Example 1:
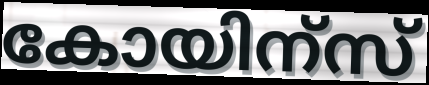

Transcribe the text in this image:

കോയിന്സ്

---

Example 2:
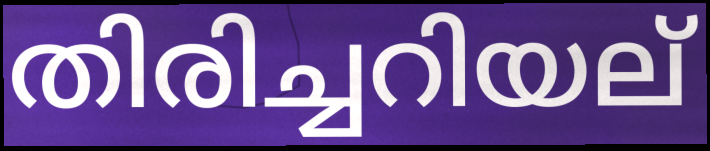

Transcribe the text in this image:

തിരിച്ചറിയല്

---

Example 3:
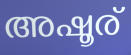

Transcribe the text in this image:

അഷൂര്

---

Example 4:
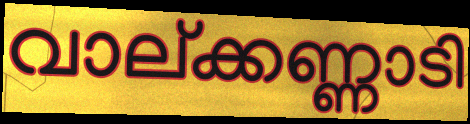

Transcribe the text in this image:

വാല്ക്കണ്ണാടി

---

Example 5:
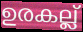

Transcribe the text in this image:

ഉരകല്ല്